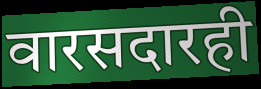
वारसदारही